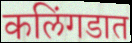
कलिंगडात